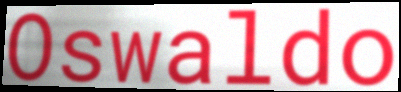
Oswaldo